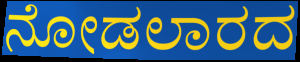
ನೋಡಲಾರದ